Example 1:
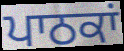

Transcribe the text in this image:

ਪਾਠਕਾਂ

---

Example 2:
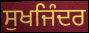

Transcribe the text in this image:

ਸੁਖਜਿੰਦਰ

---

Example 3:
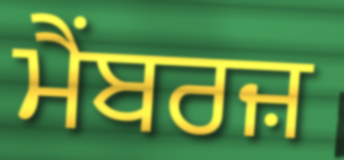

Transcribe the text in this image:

ਮੈਂਬਰਜ਼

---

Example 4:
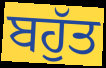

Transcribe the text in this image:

ਬਹੁੱਤ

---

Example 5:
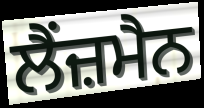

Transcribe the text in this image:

ਲੈਂਜ਼ਮੈਨ